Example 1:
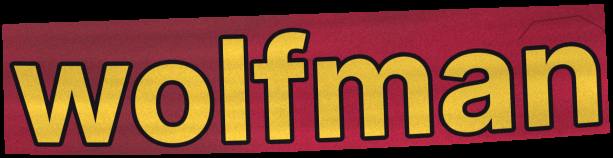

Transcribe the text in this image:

wolfman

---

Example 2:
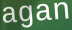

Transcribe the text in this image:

agan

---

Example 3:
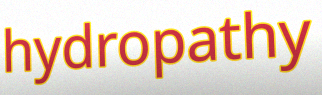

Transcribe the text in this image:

hydropathy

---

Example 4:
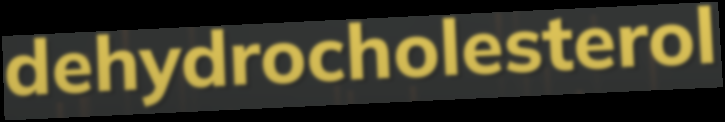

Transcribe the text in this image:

dehydrocholesterol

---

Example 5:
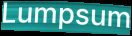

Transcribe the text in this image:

Lumpsum